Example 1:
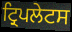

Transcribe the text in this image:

ਟ੍ਰਿਪਲੇਟਸ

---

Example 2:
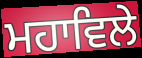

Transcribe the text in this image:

ਮਹਾਵਿਲੇ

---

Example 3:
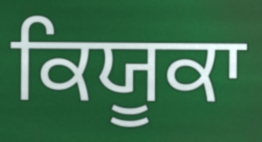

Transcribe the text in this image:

ਕਿਯੂਕਾ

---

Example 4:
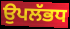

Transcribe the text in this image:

ਉਪਲੱਭਧ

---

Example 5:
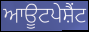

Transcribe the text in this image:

ਆਊਟਪੇਸ਼ੈਂਟ